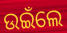
ଉଇଁଲେ